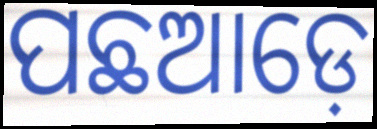
ପଛଆଡ଼େ